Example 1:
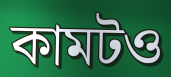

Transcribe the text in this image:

কামটও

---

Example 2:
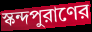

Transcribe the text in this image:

স্কন্দপুরাণের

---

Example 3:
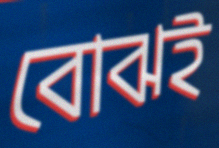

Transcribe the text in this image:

বোঝই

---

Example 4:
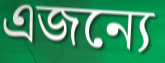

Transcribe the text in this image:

এজন্যে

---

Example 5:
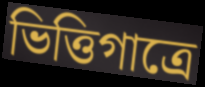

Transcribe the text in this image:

ভিত্তিগাত্রে